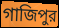
গাজিপুর